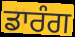
ਡਾਰੰਗ